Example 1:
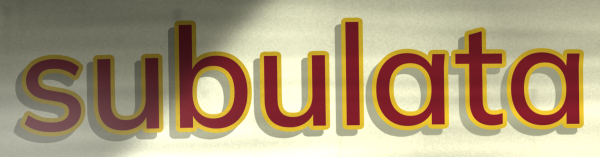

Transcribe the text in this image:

subulata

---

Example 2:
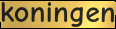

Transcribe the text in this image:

koningen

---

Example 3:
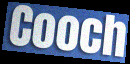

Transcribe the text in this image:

Cooch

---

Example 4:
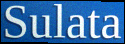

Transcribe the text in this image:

Sulata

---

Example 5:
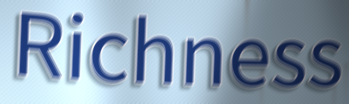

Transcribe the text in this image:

Richness